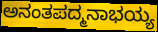
ಅನಂತಪದ್ಮನಾಭಯ್ಯ